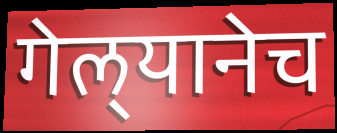
गेल्यानेच